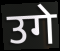
उगे